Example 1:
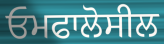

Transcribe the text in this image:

ਓਮਫਾਲੋਸੀਲ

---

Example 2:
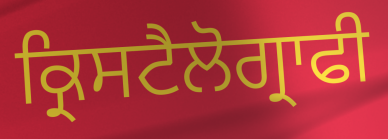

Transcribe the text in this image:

ਕ੍ਰਿਸਟੈਲੋਗ੍ਰਾਫੀ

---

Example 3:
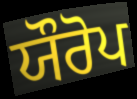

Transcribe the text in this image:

ਯੌਰੋਪ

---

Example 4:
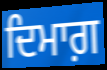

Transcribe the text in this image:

ਦਿਮਾਗ਼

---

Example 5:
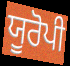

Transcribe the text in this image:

ਯੂਰੋਪੀ